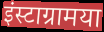
इंस्टाग्रामया